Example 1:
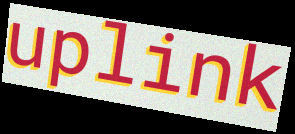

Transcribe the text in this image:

uplink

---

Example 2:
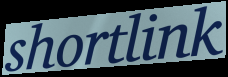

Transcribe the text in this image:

shortlink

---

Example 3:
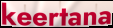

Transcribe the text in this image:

keertana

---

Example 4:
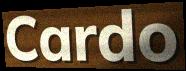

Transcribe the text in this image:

Cardo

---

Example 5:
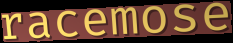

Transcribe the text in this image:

racemose